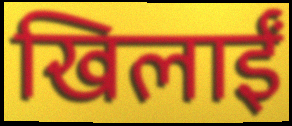
खिलाईं